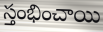
స్తంభించాయి